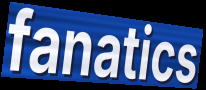
fanatics